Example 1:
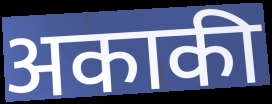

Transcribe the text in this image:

अकाकी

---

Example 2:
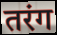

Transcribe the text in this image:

तरंग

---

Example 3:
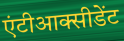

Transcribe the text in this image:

एंटीआक्सीडेंट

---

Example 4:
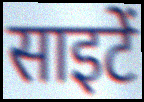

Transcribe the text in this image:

साइटें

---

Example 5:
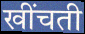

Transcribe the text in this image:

खींचती